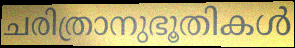
ചരിത്രാനുഭൂതികൾ